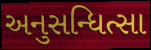
અનુસન્ધિત્સા